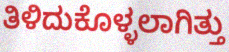
ತಿಳಿದುಕೊಳ್ಳಲಾಗಿತ್ತು